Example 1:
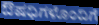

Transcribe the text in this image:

ಔಷಧಿಗಳೊಂದಿಗೆ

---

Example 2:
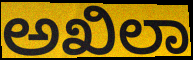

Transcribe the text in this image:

ಅಖಿಲಾ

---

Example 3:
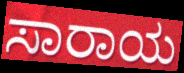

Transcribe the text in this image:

ಸಾರಾಯ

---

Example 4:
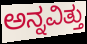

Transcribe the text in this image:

ಅನ್ನವಿತ್ತು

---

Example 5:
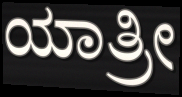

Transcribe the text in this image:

ಯಾತ್ರೀ